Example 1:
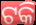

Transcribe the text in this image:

ଟକି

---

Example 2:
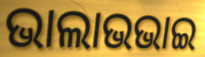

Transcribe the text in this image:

ଭାଲାଭଭାଇ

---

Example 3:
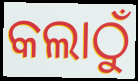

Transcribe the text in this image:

କଲାଠୁଁ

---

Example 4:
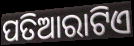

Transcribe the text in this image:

ପତିଆରାଟିଏ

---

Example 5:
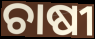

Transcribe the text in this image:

ଚାଷୀ